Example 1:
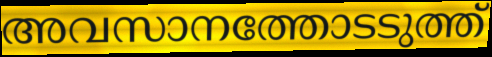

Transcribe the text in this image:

അവസാനത്തോടടുത്ത്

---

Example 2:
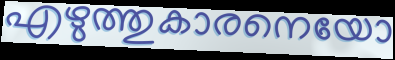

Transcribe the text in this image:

എഴുത്തുകാരനെയോ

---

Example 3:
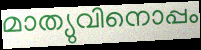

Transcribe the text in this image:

മാത്യുവിനൊപ്പം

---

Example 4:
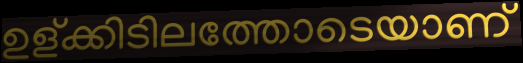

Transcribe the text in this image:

ഉള്ക്കിടിലത്തോടെയാണ്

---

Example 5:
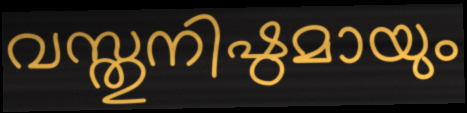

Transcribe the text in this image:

വസ്തുനിഷ്ഠമായും